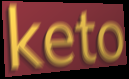
keto